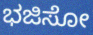
ಭಜಿಸೋ